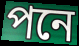
পনে